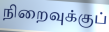
நிறைவுக்குப்